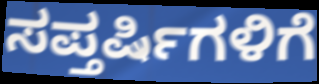
ಸಪ್ತರ್ಷಿಗಳಿಗೆ